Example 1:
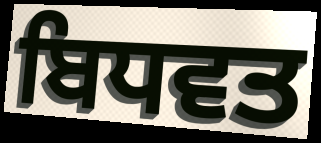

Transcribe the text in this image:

ਬਿਧਵਤ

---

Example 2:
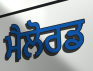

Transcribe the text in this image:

ਮੈਲੋਰਡ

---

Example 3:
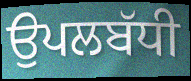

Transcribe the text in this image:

ਉਪਲਬੱਧੀ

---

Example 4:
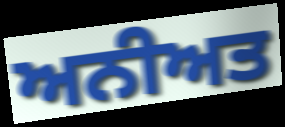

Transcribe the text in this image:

ਅਨੀਅਤ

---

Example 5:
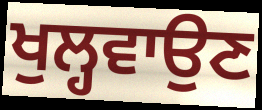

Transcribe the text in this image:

ਖੁਲ੍ਹਵਾਉਣ